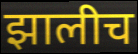
झालीच